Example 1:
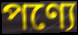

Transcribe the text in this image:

পণ্যে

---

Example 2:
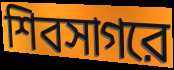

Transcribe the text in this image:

শিবসাগরে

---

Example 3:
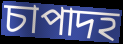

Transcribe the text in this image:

চাপাদহ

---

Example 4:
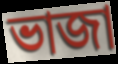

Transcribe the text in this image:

ভাজা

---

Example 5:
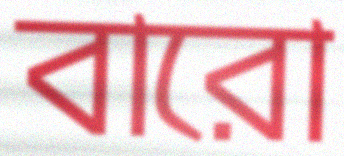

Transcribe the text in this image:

বারো